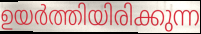
ഉയർത്തിയിരിക്കുന്ന